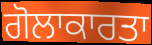
ਗੋਲਾਕਾਰਤਾ